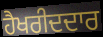
ਹੈਖਰੀਦਦਾਰ